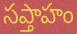
సప్తాహం